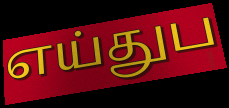
எய்துப